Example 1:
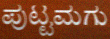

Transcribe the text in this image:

ಪುಟ್ಟಮಗು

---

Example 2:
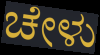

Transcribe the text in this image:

ಚೇಳು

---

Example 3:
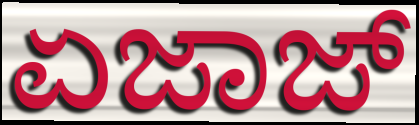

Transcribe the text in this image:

ಏಜಾಜ್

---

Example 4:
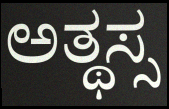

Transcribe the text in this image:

ಅತ್ಥಸ್ಸ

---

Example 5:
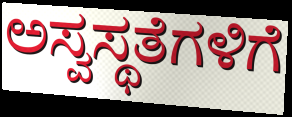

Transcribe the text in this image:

ಅಸ್ವಸ್ಥತೆಗಳಿಗೆ